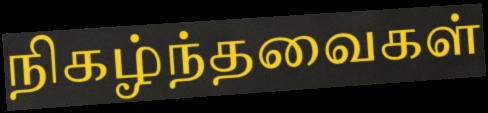
நிகழ்ந்தவைகள்